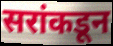
सरांकडून